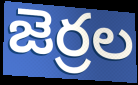
జెర్రల